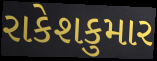
રાકેશકુમાર